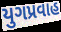
યુગપ્રવાહ